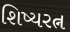
શિષ્યરત્ન